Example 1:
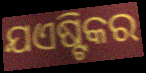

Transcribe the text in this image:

ଯଏଷ୍ଟିକର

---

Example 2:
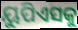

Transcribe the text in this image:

ୟୁପିଏସକୁ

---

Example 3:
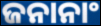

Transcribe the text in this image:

ଜନାନାଂ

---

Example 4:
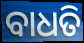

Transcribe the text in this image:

ବାଧତି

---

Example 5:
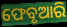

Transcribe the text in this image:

ଫେବୃଆରି